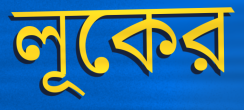
লূকের